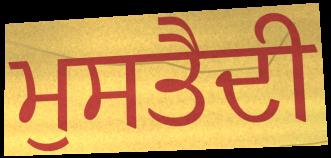
ਮੁਸਤੈਦੀ